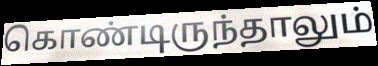
கொண்டிருந்தாலும்